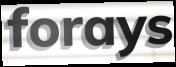
forays